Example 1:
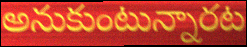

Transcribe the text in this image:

అనుకుంటున్నారట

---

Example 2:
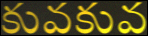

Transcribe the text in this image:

కువకువ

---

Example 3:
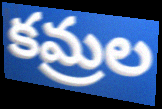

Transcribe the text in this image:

కమ్రల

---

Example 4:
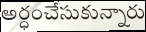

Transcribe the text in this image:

అర్ధంచేసుకున్నారు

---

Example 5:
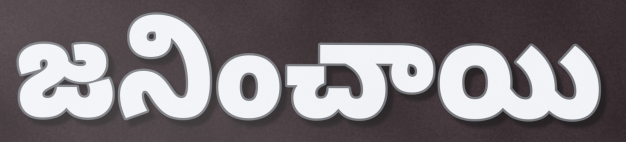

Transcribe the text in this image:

జనించాయి